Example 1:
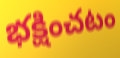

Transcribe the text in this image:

భక్షించటం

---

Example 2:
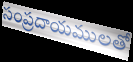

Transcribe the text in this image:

సంప్రదాయములతో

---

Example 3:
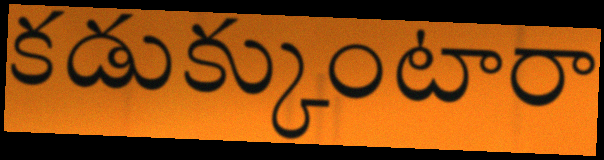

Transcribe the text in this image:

కడుక్కుంటారా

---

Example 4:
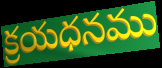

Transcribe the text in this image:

క్రయధనము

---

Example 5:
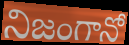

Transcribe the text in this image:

నిజంగానో